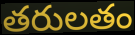
తరులతం